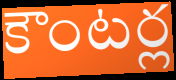
కౌంటర్ల